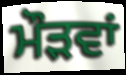
ਮੌੜਵਾਂ